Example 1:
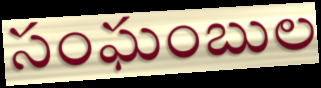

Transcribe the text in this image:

సంఘంబుల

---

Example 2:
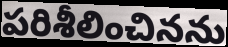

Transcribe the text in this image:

పరిశీలించినను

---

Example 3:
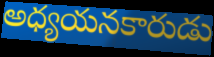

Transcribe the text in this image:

అధ్యయనకారుడు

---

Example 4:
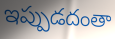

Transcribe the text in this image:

ఇప్పుడదంతా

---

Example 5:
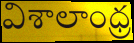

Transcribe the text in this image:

విశాలాంధ్ర